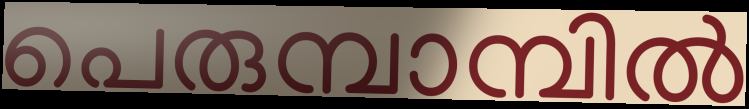
പെരുമ്പാമ്പിൽ